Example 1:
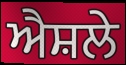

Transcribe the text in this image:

ਐਸ਼ਲੇ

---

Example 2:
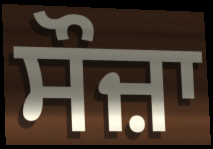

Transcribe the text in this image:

ਸੌਜ਼ਾ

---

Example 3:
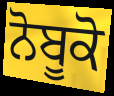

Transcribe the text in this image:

ਨੋਬੂਕੋ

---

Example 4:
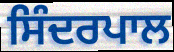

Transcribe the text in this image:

ਸਿੰਦਰਪਾਲ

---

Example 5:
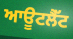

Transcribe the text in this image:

ਆਊਟਲੈੱਟ